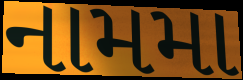
નામમા